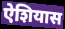
ऐशियास